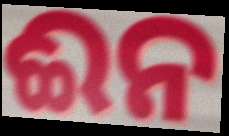
ଈନ